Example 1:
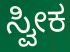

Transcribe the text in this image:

ಸ್ವೀಕ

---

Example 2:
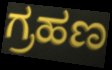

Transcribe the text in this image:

ಗ್ರಹಣ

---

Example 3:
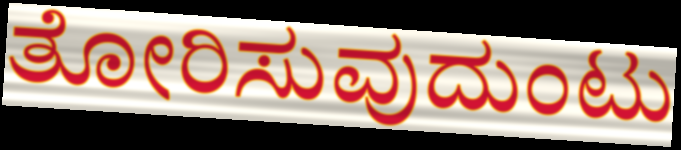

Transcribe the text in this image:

ತೋರಿಸುವುದುಂಟು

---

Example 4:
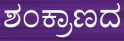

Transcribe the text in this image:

ಶಂಕ್ರಾಣದ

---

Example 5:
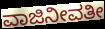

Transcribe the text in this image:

ವಾಜಿನೀವತೀ